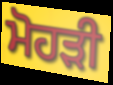
ਮੋਹੜੀ